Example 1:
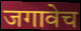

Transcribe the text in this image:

जगावेच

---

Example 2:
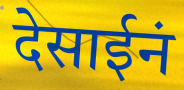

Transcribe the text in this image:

देसाईनं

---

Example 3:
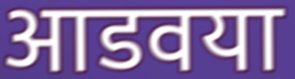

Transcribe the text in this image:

आडवया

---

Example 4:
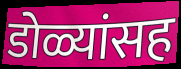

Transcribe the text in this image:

डोळ्यांसह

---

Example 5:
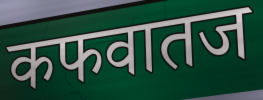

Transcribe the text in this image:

कफवातज